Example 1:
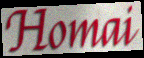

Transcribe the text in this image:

Homai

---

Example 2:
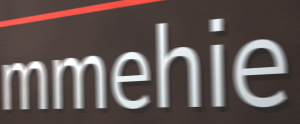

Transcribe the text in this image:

mmehie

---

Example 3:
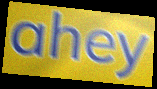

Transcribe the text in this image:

ahey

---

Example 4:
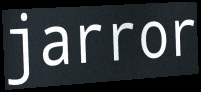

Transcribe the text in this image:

jarror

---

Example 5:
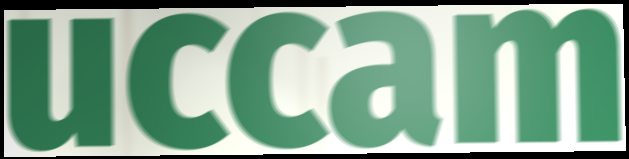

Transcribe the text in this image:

uccam